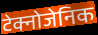
टेक्नोजेनिक